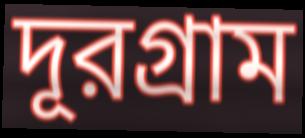
দূরগ্রাম